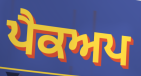
ਪੈਕਅਪ